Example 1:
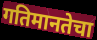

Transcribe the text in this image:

गतिमानतेचा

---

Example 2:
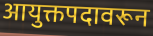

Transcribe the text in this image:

आयुक्तपदावरून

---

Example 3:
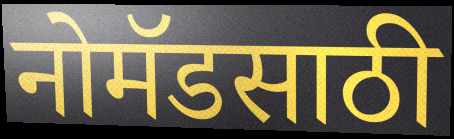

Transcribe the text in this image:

नोमॅडसाठी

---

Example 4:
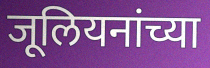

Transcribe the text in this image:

जूलियनांच्या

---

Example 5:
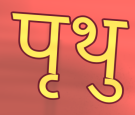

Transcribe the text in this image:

पृथु